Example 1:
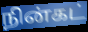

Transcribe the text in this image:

நின்கட்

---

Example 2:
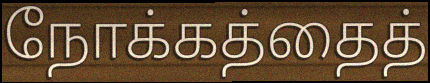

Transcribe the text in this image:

நோக்கத்தைத்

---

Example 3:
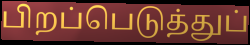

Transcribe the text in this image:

பிறப்பெடுத்துப்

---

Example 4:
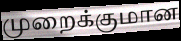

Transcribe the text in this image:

முறைக்குமான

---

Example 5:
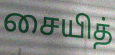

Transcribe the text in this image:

சையித்